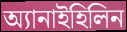
অ্যানাইহিলিন